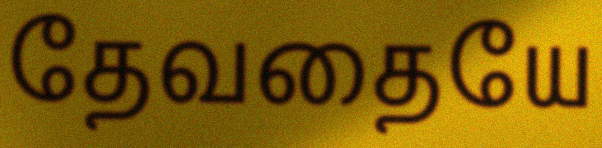
தேவதையே